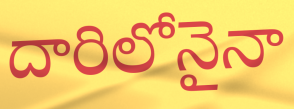
దారిలోనైనా